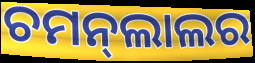
ଚମନ୍‍ଲାଲର